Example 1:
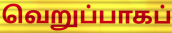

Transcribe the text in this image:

வெறுப்பாகப்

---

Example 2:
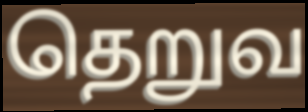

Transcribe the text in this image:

தெறுவ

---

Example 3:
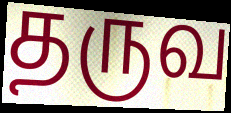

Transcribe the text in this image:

தருவ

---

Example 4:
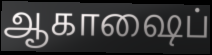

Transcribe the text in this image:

ஆகாஷைப்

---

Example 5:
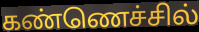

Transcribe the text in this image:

கண்ணெச்சில்